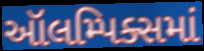
ઑલમ્પિક્સમાં